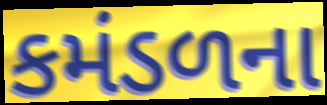
કમંડળના